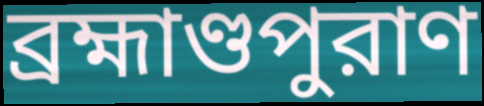
ব্রহ্মাণ্ডপুরাণ